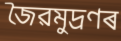
জৈৱমুদ্ৰণৰ